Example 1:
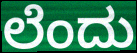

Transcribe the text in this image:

ಲೆಂದು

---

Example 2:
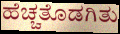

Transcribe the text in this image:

ಹೆಚ್ಚತೊಡಗಿತು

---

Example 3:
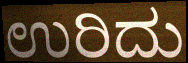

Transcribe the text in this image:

ಉರಿದು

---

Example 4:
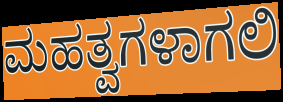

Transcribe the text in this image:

ಮಹತ್ವಗಳಾಗಲಿ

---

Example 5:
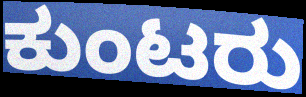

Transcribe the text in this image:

ಕುಂಟರು